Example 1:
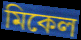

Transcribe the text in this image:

মিকেল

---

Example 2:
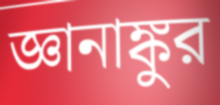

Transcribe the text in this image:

জ্ঞানাঙ্কুর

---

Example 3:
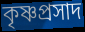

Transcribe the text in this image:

কৃষ্ণপ্রসাদ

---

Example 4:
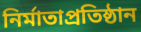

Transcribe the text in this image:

নির্মাতাপ্রতিষ্ঠান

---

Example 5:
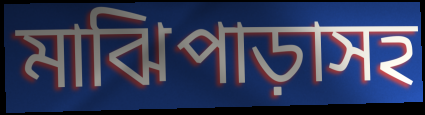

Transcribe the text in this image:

মাঝিপাড়াসহ